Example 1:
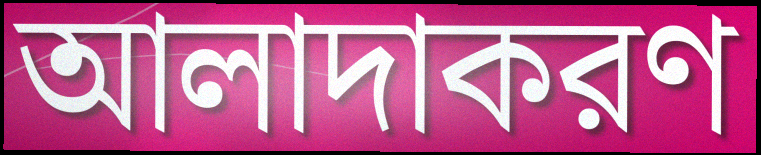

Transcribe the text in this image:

আলাদাকরণ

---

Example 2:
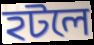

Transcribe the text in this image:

হটলে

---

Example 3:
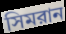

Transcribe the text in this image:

সিমরান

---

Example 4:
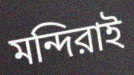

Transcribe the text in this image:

মন্দিরাই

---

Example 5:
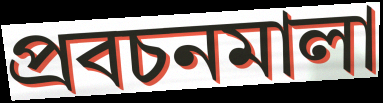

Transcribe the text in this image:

প্রবচনমালা